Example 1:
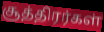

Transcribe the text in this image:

சூத்திரர்கள்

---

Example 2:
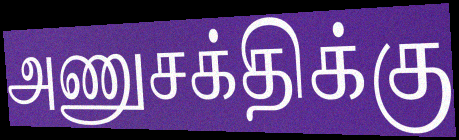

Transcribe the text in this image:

அணுசக்திக்கு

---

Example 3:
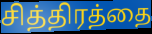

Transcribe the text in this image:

சித்திரத்தை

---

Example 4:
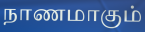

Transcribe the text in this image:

நாணமாகும்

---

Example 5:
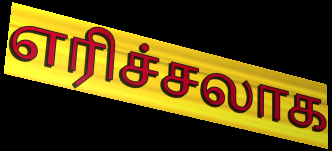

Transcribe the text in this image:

எரிச்சலாக